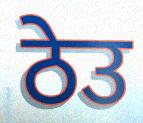
ठेउ